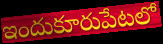
ఇందుకూరుపేటలో